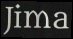
Jima